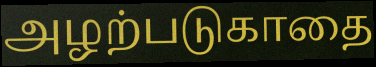
அழற்படுகாதை